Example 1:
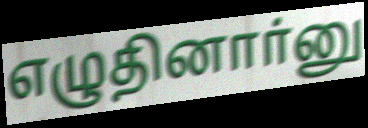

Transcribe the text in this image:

எழுதினார்னு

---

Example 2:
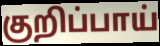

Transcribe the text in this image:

குறிப்பாய்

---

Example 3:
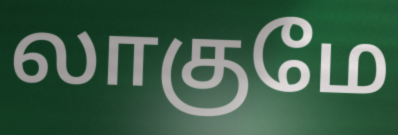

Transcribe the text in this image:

லாகுமே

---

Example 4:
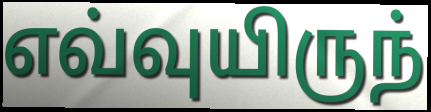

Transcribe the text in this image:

எவ்வுயிருந்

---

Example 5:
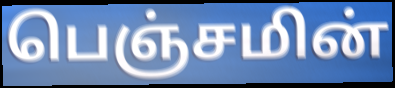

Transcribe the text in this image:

பெஞ்சமின்